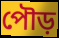
পৌড়